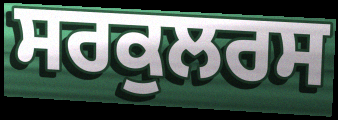
ਸਰਕੁਲਰਸ